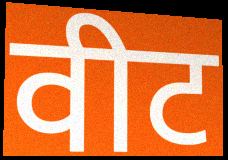
वीट